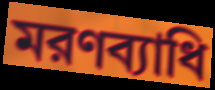
মরণব্যাধি